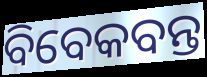
ବିବେକବନ୍ତ